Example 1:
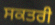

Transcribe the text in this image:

ਸਕਤਰੀ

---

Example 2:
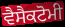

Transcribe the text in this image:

ਵੈਸੈਕਟੋਮੀ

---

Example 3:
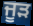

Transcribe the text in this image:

ਜੂੜ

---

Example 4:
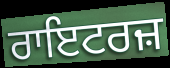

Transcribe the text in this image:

ਰਾਇਟਰਜ਼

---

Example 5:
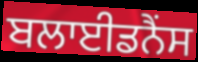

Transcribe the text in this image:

ਬਲਾਈਡਨੈਂਸ